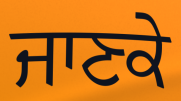
ਜਾਣਕੇ